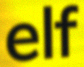
elf